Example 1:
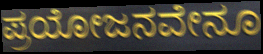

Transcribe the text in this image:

ಪ್ರಯೋಜನವೇನೂ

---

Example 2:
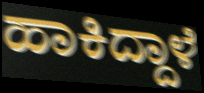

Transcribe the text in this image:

ಹಾಕಿದ್ದಾಳೆ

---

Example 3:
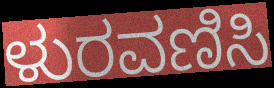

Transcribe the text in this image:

ಳುರವಣಿಸಿ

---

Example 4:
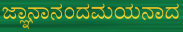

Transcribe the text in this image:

ಜ್ಞಾನಾನಂದಮಯನಾದ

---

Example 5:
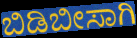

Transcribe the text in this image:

ಬಿಡಿಬೀಸಾಗಿ